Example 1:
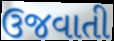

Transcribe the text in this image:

ઉજવાતી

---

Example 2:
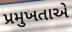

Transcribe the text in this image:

પ્રમુખતાએ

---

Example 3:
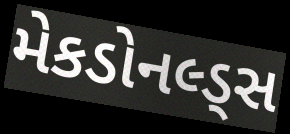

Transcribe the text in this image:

મેકડોનલ્ડ્સ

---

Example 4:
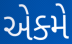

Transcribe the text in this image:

એક્મે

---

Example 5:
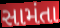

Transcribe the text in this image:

સામંતા